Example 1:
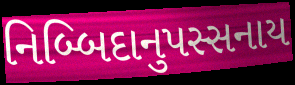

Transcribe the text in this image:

નિબ્બિદાનુપસ્સનાય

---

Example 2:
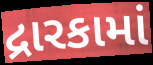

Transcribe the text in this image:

દ્રારકામાં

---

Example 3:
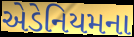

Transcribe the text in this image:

એડેનિયમના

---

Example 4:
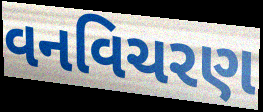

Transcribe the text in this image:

વનવિચરણ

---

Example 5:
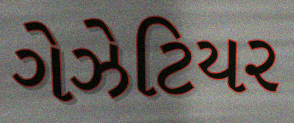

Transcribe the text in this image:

ગેઝેટિયર